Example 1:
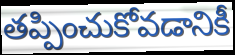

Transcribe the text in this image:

తప్పించుకోవడానికీ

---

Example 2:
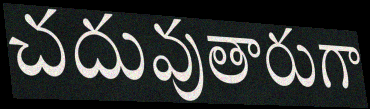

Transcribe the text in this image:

చదువుతారుగా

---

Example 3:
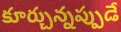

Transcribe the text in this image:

కూర్చున్నప్పుడే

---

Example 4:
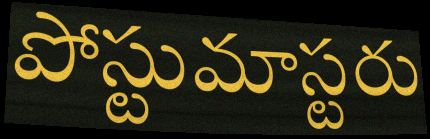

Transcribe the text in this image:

పోస్టుమాస్టరు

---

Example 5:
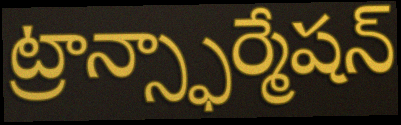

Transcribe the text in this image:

ట్రాన్స్ఫార్మేషన్